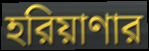
হরিয়াণার